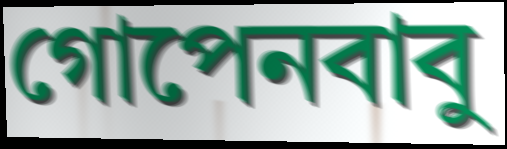
গোপেনবাবু